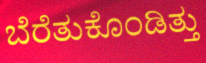
ಬೆರೆತುಕೊಂಡಿತ್ತು